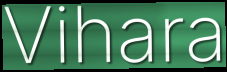
Vihara